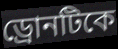
ড্রোনটিকে